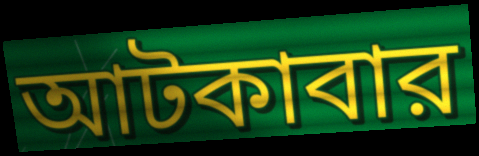
আটকাবার